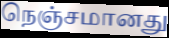
நெஞ்சமானது